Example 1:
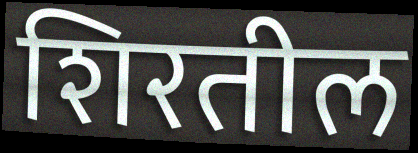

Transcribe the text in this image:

शिरतील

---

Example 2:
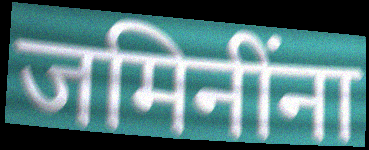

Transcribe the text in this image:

जमिनींना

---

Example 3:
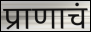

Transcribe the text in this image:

प्राणाचं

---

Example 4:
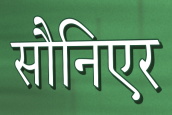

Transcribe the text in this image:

सौनिएर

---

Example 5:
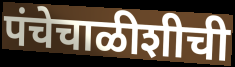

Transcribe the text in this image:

पंचेचाळीशीची